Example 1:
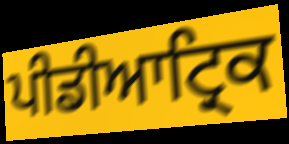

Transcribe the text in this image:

ਪੀਡੀਆਟ੍ਰਿਕ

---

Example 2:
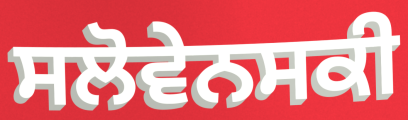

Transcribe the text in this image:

ਸਲੋਵੇਨਸਕੀ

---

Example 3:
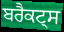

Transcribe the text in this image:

ਬਰੈਕਟ੍ਸ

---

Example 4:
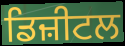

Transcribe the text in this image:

ਡਿਜ਼ੀਟਲ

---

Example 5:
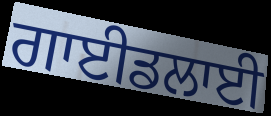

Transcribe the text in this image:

ਗਾਈਡਲਾਈ